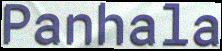
Panhala